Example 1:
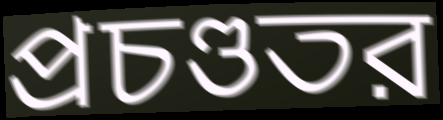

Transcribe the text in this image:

প্রচণ্ডতর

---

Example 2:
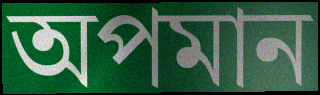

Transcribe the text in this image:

অপমান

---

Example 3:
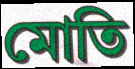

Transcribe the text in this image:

মোতি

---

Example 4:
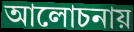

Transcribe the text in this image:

আলোচনায়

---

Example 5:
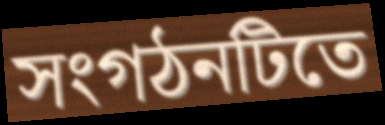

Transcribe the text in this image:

সংগঠনটিতে